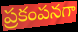
ప్రకంపనగా